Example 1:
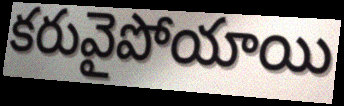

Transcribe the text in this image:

కరువైపోయాయి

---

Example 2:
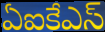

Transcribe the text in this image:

ఏఐకేఎస్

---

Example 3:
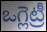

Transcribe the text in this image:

ఒగ్లెట్రీ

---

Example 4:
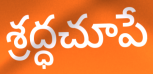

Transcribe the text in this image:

శ్రద్ధచూపే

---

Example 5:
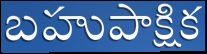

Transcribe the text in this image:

బహుపాక్షిక